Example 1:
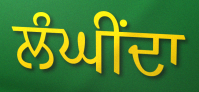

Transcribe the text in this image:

ਲੰਘੀਂਦਾ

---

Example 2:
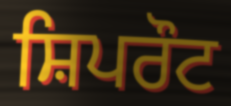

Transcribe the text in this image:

ਸ਼ਿਪਰੌਟ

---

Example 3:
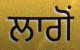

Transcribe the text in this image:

ਲਾਗੋਂ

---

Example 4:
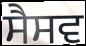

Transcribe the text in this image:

ਸੈਸਵ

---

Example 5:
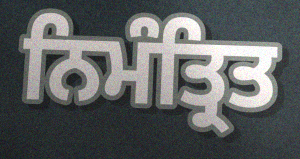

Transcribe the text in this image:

ਨਿਮੰਤ੍ਰਿਤ